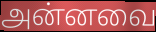
அன்னவை